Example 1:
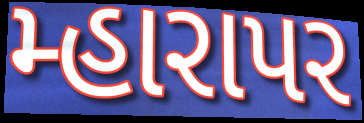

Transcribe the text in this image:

મ્હારાપર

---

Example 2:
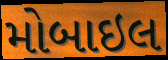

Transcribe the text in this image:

મોબાઇલ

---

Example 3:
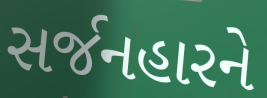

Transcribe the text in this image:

સર્જનહારને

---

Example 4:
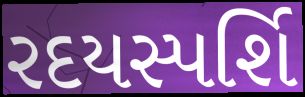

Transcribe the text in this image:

રદયસ્પર્શિ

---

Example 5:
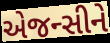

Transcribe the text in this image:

એજન્સીને